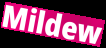
Mildew